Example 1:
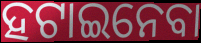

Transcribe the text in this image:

ହଟାଇନେବା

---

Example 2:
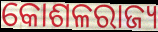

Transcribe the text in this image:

କୋଶଳରାଜ୍ୟ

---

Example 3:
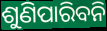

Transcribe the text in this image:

ଶୁଣିପାରିବନି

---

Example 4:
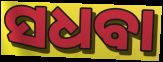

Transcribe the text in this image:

ସଧବା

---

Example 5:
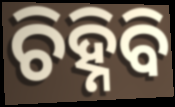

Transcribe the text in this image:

ଚିହ୍ନିବି